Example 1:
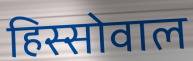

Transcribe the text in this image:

हिस्सोवाल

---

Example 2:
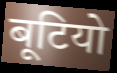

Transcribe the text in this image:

बूटियो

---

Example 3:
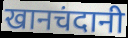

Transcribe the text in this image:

खानचंदानी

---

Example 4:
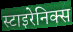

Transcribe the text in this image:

स्टाइरेनिक्स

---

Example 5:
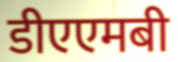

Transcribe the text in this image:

डीएएमबी